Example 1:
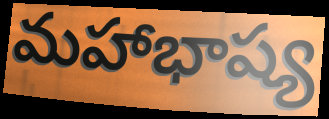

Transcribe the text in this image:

మహాభాష్య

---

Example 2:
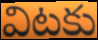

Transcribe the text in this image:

విటకు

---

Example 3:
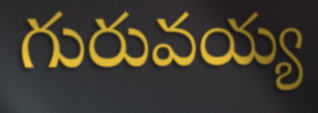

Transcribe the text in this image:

గురువయ్య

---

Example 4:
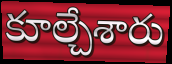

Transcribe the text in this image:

కూల్చేశారు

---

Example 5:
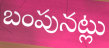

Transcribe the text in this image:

బంపునట్లు